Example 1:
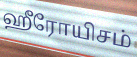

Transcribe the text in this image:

ஹீரோயிசம்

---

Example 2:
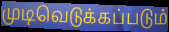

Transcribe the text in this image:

முடிவெடுக்கப்படும்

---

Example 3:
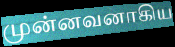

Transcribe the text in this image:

முன்னவனாகிய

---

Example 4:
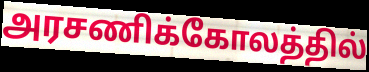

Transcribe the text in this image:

அரசணிக்கோலத்தில்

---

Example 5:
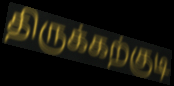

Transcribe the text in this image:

திருக்கற்குடி